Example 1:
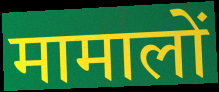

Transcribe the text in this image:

मामालों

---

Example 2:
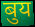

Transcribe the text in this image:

बुय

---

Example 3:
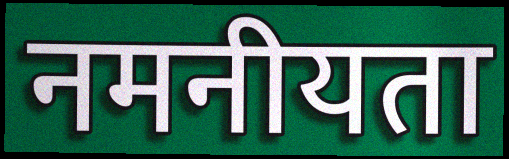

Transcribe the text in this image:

नमनीयता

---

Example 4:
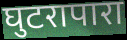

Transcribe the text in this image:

घुटरापारा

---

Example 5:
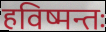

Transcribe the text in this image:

हविष्मन्तः